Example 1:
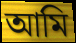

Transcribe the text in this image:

আমি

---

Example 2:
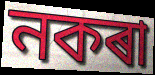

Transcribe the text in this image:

নকৰা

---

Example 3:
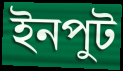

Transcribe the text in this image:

ইনপুট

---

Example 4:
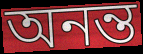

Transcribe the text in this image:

অনন্ত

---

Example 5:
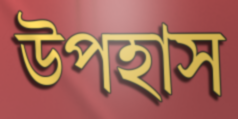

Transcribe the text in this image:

উপহাস